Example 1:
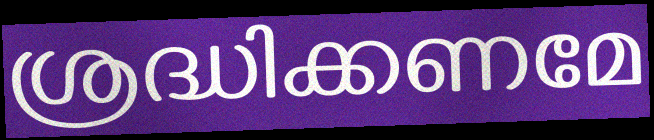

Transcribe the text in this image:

ശ്രദ്ധിക്കണമേ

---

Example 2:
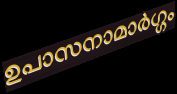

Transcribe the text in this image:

ഉപാസനാമാർഗ്ഗം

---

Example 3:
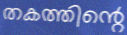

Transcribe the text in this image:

തകത്തിന്റെ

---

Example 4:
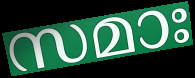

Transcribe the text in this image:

സമാഃ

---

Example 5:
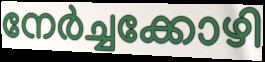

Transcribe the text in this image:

നേർച്ചക്കോഴി